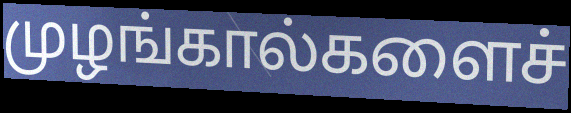
முழங்கால்களைச்